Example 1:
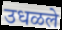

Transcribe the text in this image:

उधळले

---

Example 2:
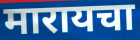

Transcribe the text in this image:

मारायचा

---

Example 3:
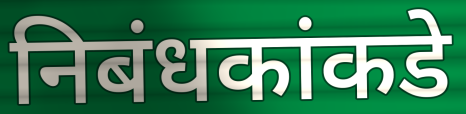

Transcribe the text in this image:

निबंधकांकडे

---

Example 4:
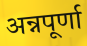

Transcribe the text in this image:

अन्नपूर्णा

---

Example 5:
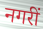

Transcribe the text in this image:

नगरीं